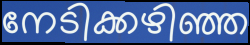
നേടിക്കഴിഞ്ഞ